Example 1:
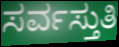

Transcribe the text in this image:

ಸರ್ವಸ್ತುತಿ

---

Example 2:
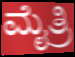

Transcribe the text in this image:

ಮೈತ್ರಿ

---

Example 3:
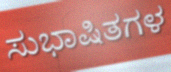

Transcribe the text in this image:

ಸುಭಾಷಿತಗಳ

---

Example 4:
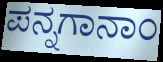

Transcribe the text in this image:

ಪನ್ನಗಾನಾಂ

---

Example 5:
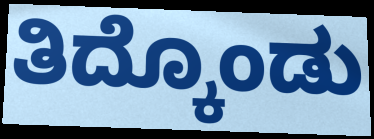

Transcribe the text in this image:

ತಿದ್ಕೊಂಡು